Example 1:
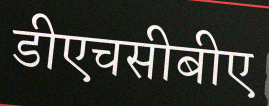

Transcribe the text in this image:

डीएचसीबीए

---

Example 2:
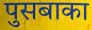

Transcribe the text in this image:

पुसबाका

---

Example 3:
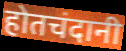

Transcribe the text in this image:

होतचंदानी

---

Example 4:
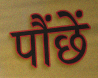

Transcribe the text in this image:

पौंछें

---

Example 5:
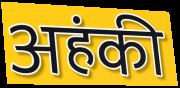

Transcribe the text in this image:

अहंकी